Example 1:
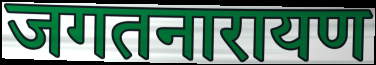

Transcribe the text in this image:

जगतनारायण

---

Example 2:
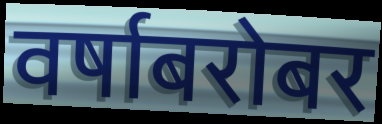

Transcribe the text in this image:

वर्षाबरोबर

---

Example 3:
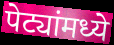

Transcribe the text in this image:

पेट्यांमध्ये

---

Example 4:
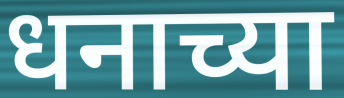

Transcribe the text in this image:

धनाच्या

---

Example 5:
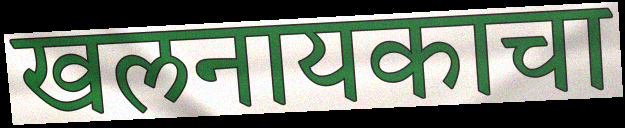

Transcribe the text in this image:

खलनायकाचा